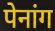
पेनांग